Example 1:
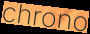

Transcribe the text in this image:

chrono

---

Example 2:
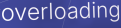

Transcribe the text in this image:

overloading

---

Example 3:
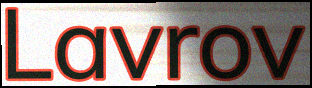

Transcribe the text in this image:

Lavrov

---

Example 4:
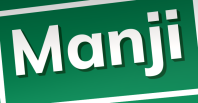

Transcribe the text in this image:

Manji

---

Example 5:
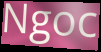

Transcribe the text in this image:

Ngoc